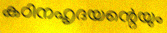
കഠിനഹൃദയന്റെയും